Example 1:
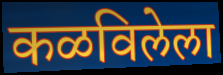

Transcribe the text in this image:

कळविलेला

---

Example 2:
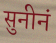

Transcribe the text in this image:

सुनीनं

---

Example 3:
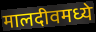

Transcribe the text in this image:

मालदीवमध्ये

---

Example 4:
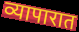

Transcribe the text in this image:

व्यापारात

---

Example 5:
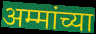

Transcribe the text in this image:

अम्मांच्या